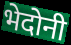
भेदोनी